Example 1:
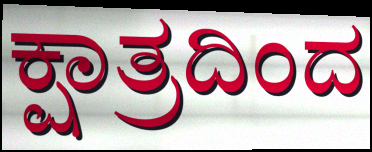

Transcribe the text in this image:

ಕ್ಷಾತ್ರದಿಂದ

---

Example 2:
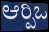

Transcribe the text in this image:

ಆರ್‍ಪಿಒ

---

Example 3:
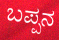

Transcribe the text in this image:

ಬಪ್ಪನ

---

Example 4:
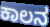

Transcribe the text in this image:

ಕಾಲನ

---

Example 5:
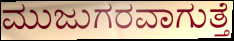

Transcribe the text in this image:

ಮುಜುಗರವಾಗುತ್ತೆ